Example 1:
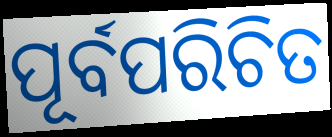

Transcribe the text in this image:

ପୂର୍ବପରିଚିତ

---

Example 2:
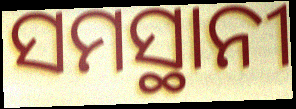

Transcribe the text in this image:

ସମସ୍ଥାନୀ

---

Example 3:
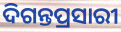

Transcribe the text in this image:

ଦିଗନ୍ତପ୍ରସାରୀ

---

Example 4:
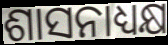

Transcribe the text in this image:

ଶାସନାଧ୍ୟକ୍ଷ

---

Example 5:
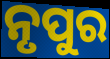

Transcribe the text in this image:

ନୃପୁର